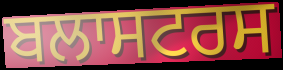
ਬਲਾਸਟਰਸ